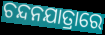
ଚନ୍ଦନଯାତ୍ରାରେ